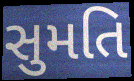
સુમતિ